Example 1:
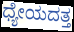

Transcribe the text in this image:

ಧ್ಯೇಯದತ್ತ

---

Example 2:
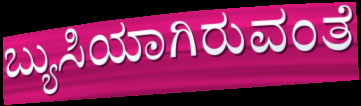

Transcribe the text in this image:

ಬ್ಯುಸಿಯಾಗಿರುವಂತೆ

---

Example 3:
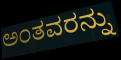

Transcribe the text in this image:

ಅಂತವರನ್ನು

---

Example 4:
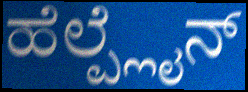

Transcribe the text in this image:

ಹೆಲ್ಪ್ಲೈನ್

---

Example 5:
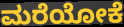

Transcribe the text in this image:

ಮರೆಯೋಕೆ